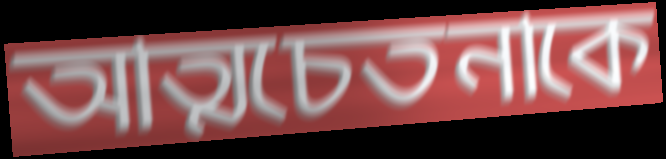
আত্মচেতনাকে